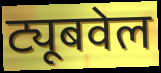
ट्यूबवेल